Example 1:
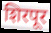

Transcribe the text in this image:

शिरपूर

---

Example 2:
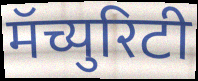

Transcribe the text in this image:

मॅच्युरिटी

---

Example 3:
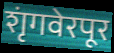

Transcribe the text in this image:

शृंगवेरपूर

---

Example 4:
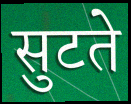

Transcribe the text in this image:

सुटते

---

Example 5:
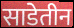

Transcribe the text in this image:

साडेतीन